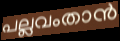
പല്ലവംതാൻ